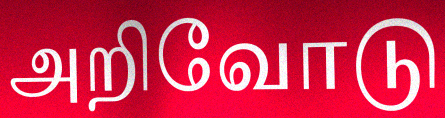
அறிவோடு